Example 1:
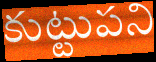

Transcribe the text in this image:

కుట్టుపని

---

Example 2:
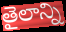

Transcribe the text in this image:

తైలాన్ని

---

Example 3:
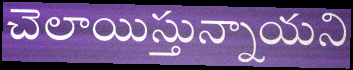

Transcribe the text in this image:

చెలాయిస్తున్నాయని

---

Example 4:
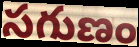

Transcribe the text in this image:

సగుణం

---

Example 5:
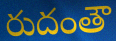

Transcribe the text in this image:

రుదంతౌ